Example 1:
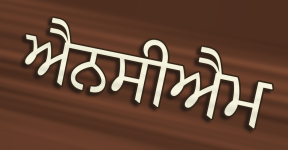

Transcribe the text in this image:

ਐਨਸੀਐਮ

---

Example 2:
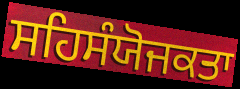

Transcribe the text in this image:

ਸਹਿਸੰਯੋਜਕਤਾ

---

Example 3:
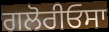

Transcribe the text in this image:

ਗਲੋਰੀਓਸਾ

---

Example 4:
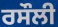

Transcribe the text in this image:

ਰਸੌਲੀ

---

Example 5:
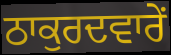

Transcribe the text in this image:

ਠਾਕੁਰਦਵਾਰੇਂ